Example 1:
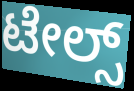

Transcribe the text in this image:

ಟೇಲ್ಸ್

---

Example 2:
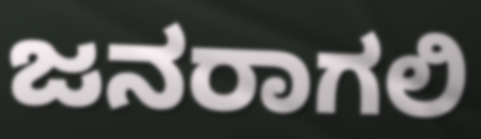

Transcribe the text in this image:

ಜನರಾಗಲಿ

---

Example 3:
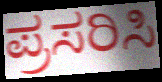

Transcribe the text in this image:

ಪ್ರಸರಿಸಿ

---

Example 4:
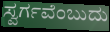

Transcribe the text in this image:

ಸ್ವರ್ಗವೆಂಬುದು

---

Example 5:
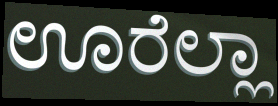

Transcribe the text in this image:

ಊರೆಲ್ಲಾ